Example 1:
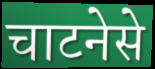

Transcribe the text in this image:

चाटनेसे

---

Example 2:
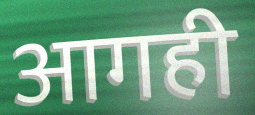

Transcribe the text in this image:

आगही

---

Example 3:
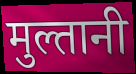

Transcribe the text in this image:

मुल्‍तानी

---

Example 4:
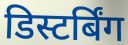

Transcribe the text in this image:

डिस्टर्बिंग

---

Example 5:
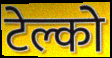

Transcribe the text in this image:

टेल्को